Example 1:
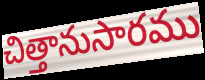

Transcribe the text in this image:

చిత్తానుసారము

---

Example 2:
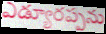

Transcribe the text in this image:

ఎడ్యూరప్పను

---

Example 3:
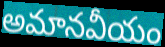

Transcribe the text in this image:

అమానవీయం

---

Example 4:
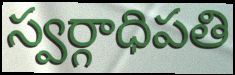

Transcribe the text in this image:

స్వర్గాధిపతి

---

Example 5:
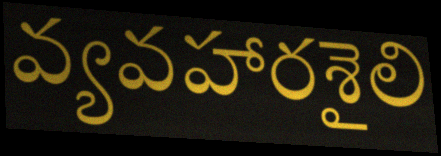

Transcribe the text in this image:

వ్యవహారశైలి